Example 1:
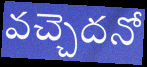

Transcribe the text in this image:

వచ్చెదనో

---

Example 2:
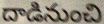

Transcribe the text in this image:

దాడినుంచి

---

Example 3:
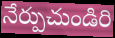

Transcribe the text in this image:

నేర్పుచుండిరి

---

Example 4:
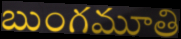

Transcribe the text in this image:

బుంగమూతి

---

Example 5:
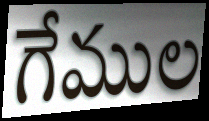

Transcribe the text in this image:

గేముల